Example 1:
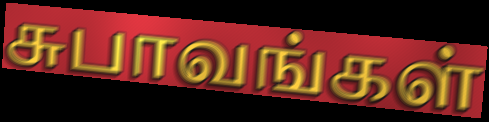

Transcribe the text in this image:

சுபாவங்கள்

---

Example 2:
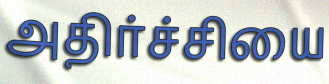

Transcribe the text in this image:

அதிர்ச்சியை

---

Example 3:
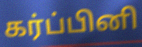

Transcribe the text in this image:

கர்ப்பினி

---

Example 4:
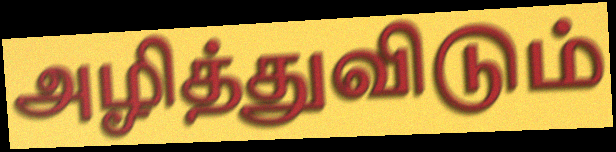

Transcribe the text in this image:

அழித்துவிடும்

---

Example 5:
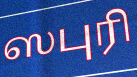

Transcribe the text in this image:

ஸபுரி